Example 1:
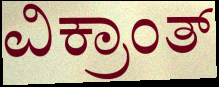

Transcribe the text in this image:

ವಿಕ್ರಾಂತ್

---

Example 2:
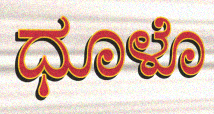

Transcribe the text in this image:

ಧೂಳೊ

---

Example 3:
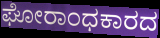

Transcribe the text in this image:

ಘೋರಾಂಧಕಾರದ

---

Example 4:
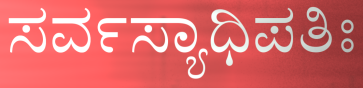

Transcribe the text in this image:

ಸರ್ವಸ್ಯಾಧಿಪತಿಃ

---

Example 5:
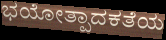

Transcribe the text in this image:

ಭಯೋತ್ಪಾದಕತೆಯ